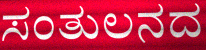
ಸಂತುಲನದ